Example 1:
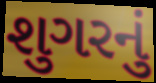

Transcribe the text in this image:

શુગરનું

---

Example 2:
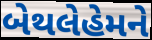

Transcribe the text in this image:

બેથલેહેમને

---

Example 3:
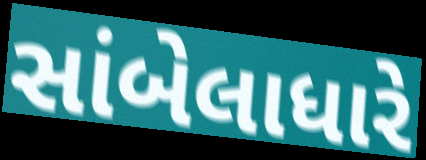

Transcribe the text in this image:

સાંબેલાધારે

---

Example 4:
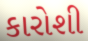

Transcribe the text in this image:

કારોશી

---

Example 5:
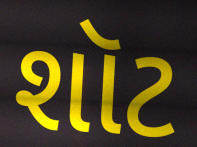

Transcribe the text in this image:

શૉટ